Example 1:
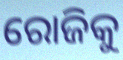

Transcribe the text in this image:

ରୋଜିକୁ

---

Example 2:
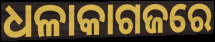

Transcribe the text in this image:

ଧଳାକାଗଜରେ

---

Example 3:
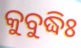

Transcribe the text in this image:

କୁବୁଦ୍ଧିଃ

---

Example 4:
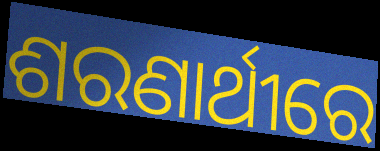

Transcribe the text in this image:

ଶରଣାର୍ଥୀରେ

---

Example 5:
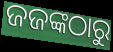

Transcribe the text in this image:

ଜଜଙ୍କଠାରୁ